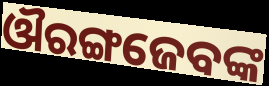
ଔରଙ୍ଗଜେବଙ୍କ